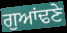
ਗੁਆਂਢਣੇ